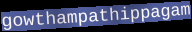
gowthampathippagam